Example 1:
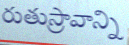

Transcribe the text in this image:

రుతుస్రావాన్ని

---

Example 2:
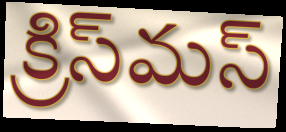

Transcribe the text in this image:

క్రిస్‌మస్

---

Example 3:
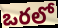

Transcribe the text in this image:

ఒరలో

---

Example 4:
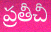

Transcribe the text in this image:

ప్రతీచీ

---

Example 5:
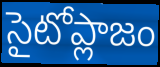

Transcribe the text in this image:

సైటోప్లాజం